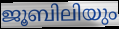
ജൂബിലിയും